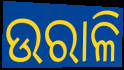
ଉରାଳି